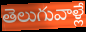
తెలుగువాళ్లే